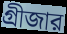
গ্রীজার